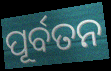
ପୂର୍ବତନ